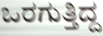
ಒರಗುತ್ತಿದ್ದ